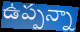
ఉప్పన్నా